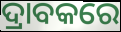
ଦ୍ରାବକରେ